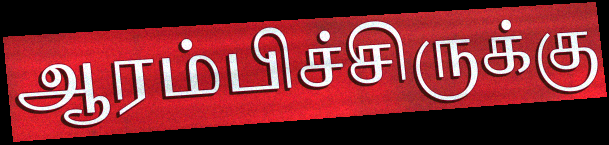
ஆரம்பிச்சிருக்கு